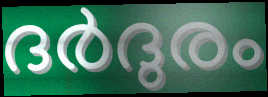
ദർദുരം